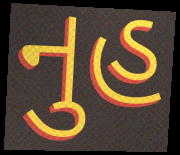
નુહ